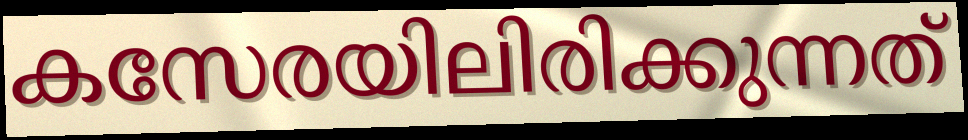
കസേരയിലിരിക്കുന്നത്